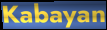
Kabayan